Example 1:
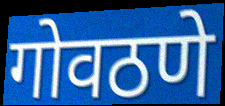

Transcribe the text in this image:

गोवठणे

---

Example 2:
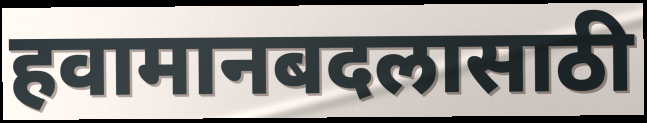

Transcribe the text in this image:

हवामानबदलासाठी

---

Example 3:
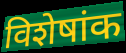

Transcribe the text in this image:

विशेषांक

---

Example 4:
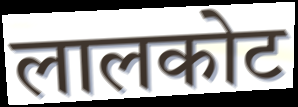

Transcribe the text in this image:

लालकोट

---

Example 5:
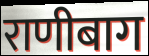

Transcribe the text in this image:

राणीबाग